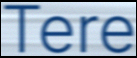
Tere